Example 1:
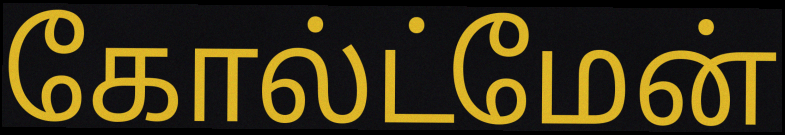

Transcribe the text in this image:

கோல்ட்மேன்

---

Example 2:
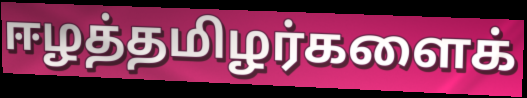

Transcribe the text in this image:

ஈழத்தமிழர்களைக்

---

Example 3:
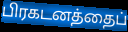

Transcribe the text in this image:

பிரகடனத்தைப்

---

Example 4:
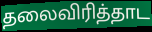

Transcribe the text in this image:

தலைவிரித்தாட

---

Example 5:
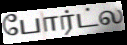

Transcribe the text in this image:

போர்ட்ல